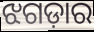
ଝଗଡ଼ାର